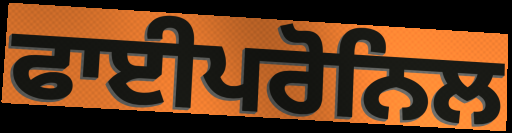
ਫਾਈਪਰੋਨਿਲ